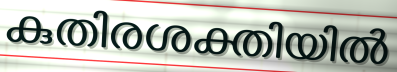
കുതിരശക്തിയിൽ